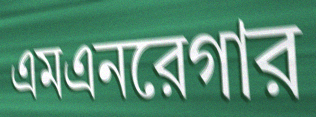
এমএনরেগার